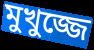
মুখুজ্জে